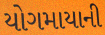
યોગમાયાની